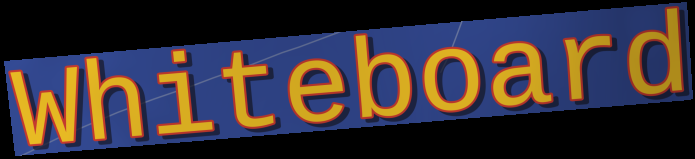
Whiteboard